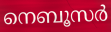
നെബൂസർ